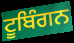
ਟੂਬਿੰਗਨ